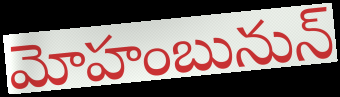
మోహంబునున్